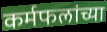
कर्मफलांच्या